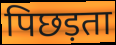
पिछड़ता